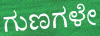
ಗುಣಗಳೇ